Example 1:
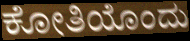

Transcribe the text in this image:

ಕೋತಿಯೊಂದು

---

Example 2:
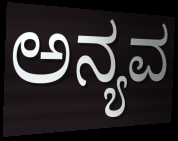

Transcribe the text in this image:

ಅನ್ಯವ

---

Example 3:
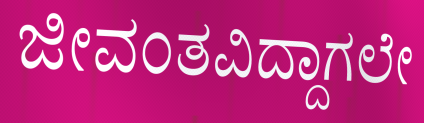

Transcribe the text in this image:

ಜೀವಂತವಿದ್ದಾಗಲೇ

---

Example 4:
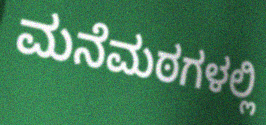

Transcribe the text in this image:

ಮನೆಮಠಗಳಲ್ಲಿ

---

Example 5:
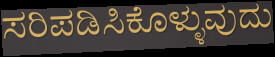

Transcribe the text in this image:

ಸರಿಪಡಿಸಿಕೊಳ್ಳುವುದು